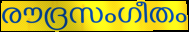
രൗദ്രസംഗീതം